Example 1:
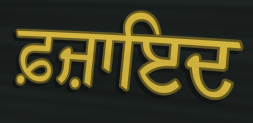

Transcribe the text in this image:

ਫ਼ਜ਼ਾਇਦ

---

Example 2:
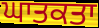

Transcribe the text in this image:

ਘਾਤਕਤਾ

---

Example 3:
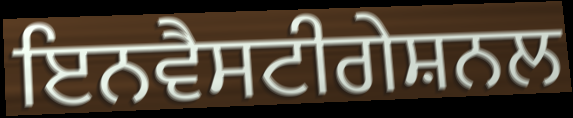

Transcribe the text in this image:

ਇਨਵੈਸਟੀਗੇਸ਼ਨਲ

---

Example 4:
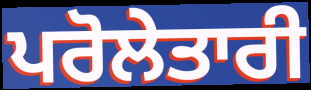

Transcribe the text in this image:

ਪਰੋਲੇਤਾਰੀ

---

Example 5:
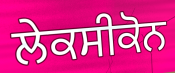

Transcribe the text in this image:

ਲੇਕਸੀਕੋਨ